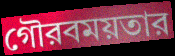
গৌরবময়তার